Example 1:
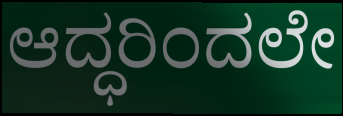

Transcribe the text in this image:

ಆದ್ಧರಿಂದಲೇ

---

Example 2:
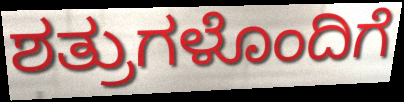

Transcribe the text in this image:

ಶತ್ರುಗಳೊಂದಿಗೆ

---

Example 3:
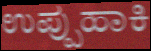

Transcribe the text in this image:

ಉಪ್ಪುಹಾಕಿ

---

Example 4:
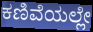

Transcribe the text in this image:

ಕಣಿವೆಯಲ್ಲೇ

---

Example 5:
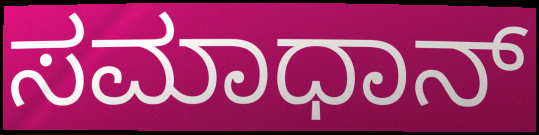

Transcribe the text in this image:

ಸಮಾಧಾನ್